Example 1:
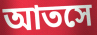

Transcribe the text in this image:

আতসে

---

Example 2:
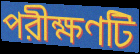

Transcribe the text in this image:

পরীক্ষণটি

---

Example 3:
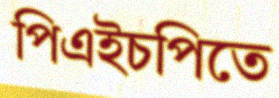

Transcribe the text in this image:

পিএইচপিতে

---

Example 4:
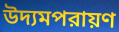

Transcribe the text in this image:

উদ্যমপরায়ণ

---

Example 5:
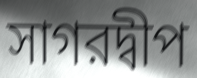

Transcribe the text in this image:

সাগরদ্বীপ